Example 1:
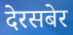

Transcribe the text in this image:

देरसबेर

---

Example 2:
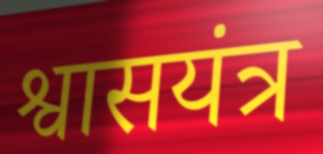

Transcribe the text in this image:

श्वासयंत्र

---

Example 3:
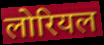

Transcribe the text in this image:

लोरियल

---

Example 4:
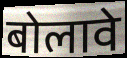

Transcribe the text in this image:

बोलावे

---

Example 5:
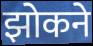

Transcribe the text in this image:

झोकने